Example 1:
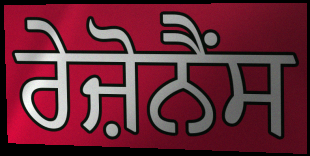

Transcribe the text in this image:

ਰੇਜ਼ੋਨੈਂਸ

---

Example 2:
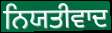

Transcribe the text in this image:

ਨਿਯਤੀਵਾਦ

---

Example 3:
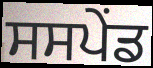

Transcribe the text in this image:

ਸਸਪੇੰਡ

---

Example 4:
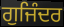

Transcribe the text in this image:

ਗੁਜਿੰਦਰ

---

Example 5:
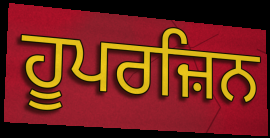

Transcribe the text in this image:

ਹੂਪਰਜ਼ਿਨ